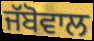
ਜੱਬੋਵਾਲ